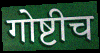
गोष्टीच